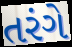
તરંગે